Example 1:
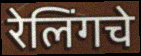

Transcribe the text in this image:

रेलिंगचे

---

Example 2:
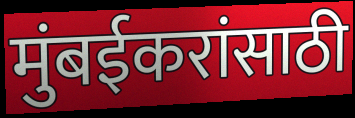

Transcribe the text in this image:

मुंबईकरांसाठी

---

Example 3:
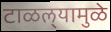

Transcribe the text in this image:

टाळल्यामुळे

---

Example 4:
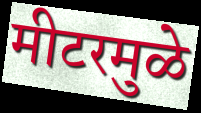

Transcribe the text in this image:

मीटरमुळे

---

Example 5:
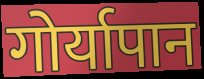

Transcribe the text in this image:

गोर्यापान